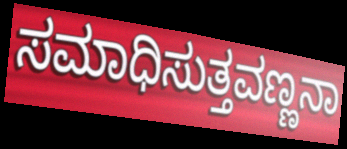
ಸಮಾಧಿಸುತ್ತವಣ್ಣನಾ